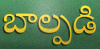
బాల్పడి